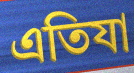
এতিযা